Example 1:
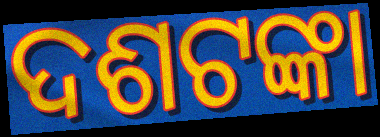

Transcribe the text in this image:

ଦଶଟଙ୍କା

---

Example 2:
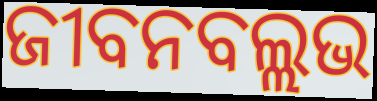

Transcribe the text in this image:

ଜୀବନବଲ୍ଲଭ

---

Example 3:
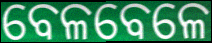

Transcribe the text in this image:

ବେଳବେଳେ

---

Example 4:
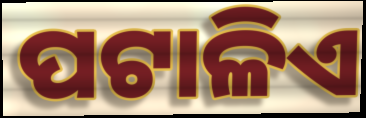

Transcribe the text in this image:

ପଟାଳିଏ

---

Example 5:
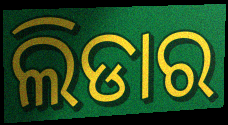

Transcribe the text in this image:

ଲିଡାର